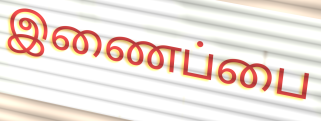
இணைப்பை